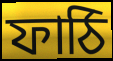
ফাঠি